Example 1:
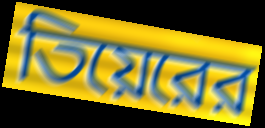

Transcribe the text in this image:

তিয়েরের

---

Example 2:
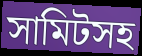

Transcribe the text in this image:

সামিটসহ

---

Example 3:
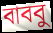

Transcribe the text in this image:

বাববু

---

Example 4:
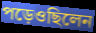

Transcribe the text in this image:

পড়েওছিলেন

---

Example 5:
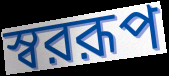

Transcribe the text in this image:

স্বররূপ